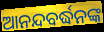
ଆନନ୍ଦବର୍ଦ୍ଧନଙ୍କ